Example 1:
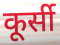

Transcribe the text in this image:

कूर्सी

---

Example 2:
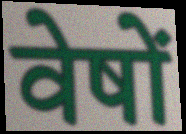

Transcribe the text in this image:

वेषों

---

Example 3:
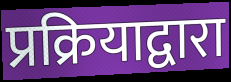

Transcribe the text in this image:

प्रक्रियाद्वारा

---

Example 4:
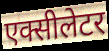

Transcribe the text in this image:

एक्सीलेटर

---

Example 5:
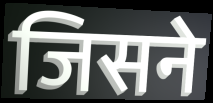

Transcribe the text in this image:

जिसने